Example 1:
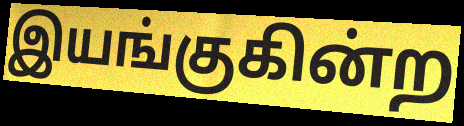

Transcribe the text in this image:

இயங்குகின்ற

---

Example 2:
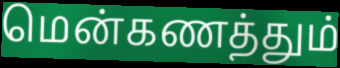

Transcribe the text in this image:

மென்கணத்தும்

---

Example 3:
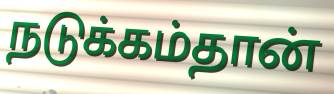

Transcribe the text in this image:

நடுக்கம்தான்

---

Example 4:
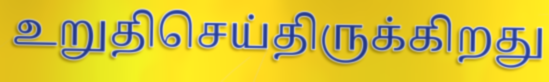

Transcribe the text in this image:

உறுதிசெய்திருக்கிறது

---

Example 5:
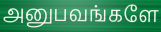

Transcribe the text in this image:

அனுபவங்களே